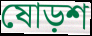
ষোড়শ